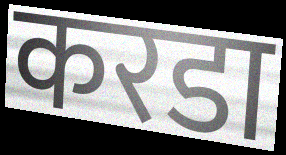
करडा